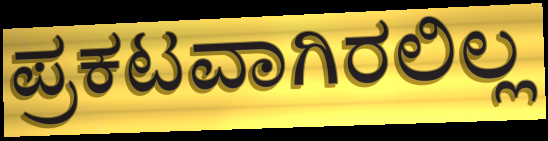
ಪ್ರಕಟವಾಗಿರಲಿಲ್ಲ